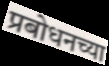
प्रबोधनच्या